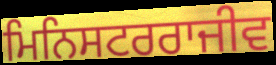
ਮਿਨਿਸਟਰਰਾਜੀਵ